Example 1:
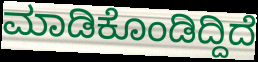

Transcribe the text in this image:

ಮಾಡಿಕೊಂಡಿದ್ದಿದೆ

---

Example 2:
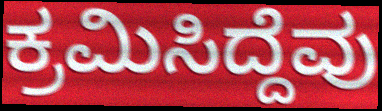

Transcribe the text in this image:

ಕ್ರಮಿಸಿದ್ದೆವು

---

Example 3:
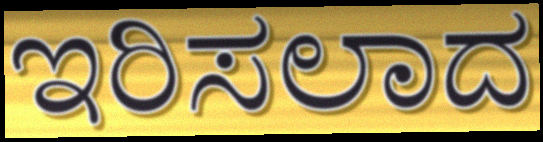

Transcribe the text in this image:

ಇರಿಸಲಾದ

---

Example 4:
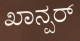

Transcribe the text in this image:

ಖಾನ್ಪರ್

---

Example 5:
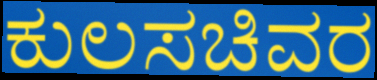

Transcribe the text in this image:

ಕುಲಸಚಿವರ